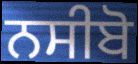
ਨਸੀਬੋ